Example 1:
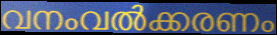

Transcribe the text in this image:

വനംവൽക്കരണം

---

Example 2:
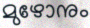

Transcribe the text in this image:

മുഴോനും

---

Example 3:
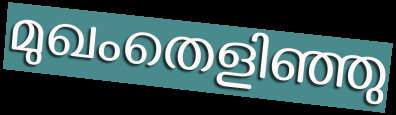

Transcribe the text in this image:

മുഖംതെളിഞ്ഞു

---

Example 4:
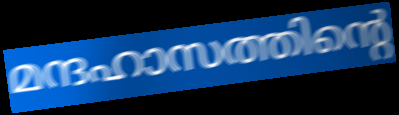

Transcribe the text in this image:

മന്ദഹാസത്തിന്റെ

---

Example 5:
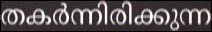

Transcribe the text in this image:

തകർന്നിരിക്കുന്ന